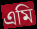
এমি